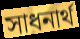
সাধনার্থ